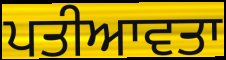
ਪਤੀਆਵਤਾ